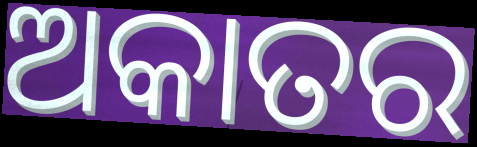
ଅକାତର